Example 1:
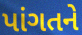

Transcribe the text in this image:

પાંગતને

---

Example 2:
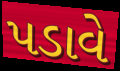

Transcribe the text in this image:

પડાવે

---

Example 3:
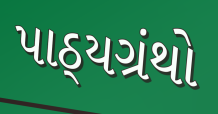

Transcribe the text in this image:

પાઠ્યગ્રંથો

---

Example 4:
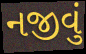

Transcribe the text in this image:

નજીવું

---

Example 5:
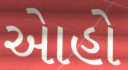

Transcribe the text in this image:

એાહો